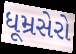
ધૂમ્રસેરો